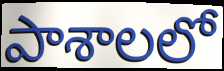
పాశాలలో